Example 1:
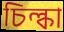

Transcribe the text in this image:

চিল্কা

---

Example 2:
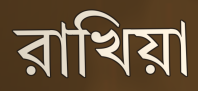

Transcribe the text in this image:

রাখিয়া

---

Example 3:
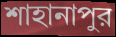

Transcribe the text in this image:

শাহানাপুর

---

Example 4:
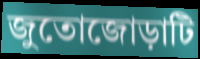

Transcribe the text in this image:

জুতোজোড়াটি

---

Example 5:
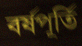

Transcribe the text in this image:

বর্ষপূর্তি